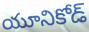
యూనికోడ్